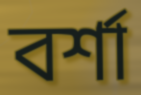
বর্শা